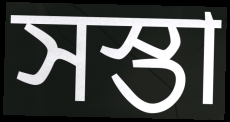
সস্তা